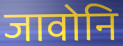
जावोनि